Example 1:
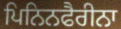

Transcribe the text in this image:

ਪਿਨਿਨਫੈਰੀਨਾ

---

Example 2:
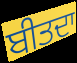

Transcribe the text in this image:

ਬੀਤਦਾ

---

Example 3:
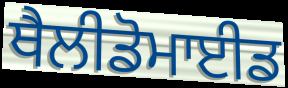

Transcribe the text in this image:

ਥੈਲੀਡੋਮਾਈਡ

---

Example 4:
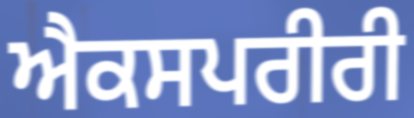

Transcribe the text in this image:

ਐਕਸਪਰੀਰੀ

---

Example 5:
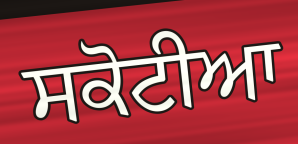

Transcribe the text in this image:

ਸਕੋਟੀਆ